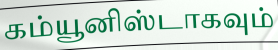
கம்யூனிஸ்டாகவும்